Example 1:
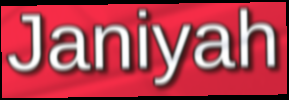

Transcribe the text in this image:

Janiyah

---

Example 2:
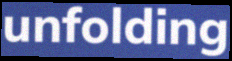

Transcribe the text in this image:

unfolding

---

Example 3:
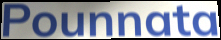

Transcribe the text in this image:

Pounnata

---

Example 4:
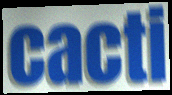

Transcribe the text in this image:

cacti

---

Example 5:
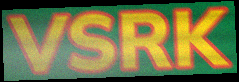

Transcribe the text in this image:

VSRK